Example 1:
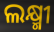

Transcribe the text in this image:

ଲକ୍ଷ୍ମୀ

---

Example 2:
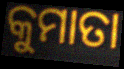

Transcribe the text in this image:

କୁମାତା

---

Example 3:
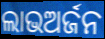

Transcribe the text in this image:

ଲାଭଅର୍ଜନ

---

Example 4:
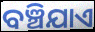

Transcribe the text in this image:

ବଞ୍ଚିଯାଏ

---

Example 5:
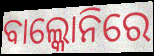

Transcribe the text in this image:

ବାଲ୍କୋନିରେ